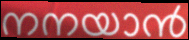
നനയാൻ